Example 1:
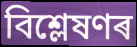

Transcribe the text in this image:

বিশ্লেষণৰ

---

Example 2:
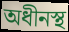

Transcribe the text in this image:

অধীনস্থ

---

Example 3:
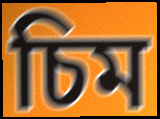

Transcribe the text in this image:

চিম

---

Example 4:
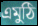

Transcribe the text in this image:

এমুঠি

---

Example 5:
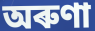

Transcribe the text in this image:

অৰুণা